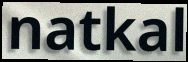
natkal